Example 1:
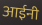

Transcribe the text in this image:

आईनी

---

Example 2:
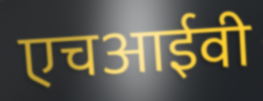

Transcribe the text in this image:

एचआईवी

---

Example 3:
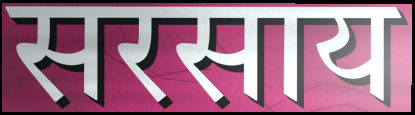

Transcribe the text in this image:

सरसाय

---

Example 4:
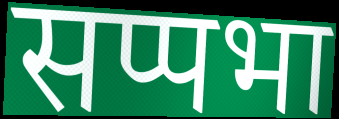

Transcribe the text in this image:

सप्पभा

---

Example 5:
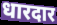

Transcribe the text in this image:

धारदार